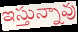
ఇస్తున్నావు